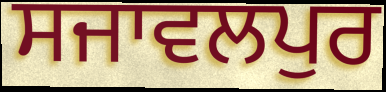
ਸਜਾਵਲਪੁਰ